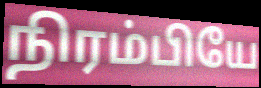
நிரம்பியே